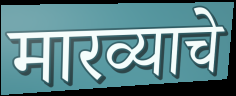
मारव्याचे